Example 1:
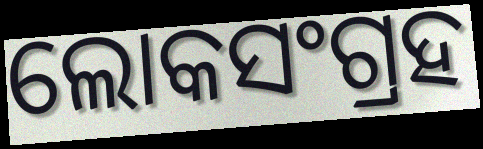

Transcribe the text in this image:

ଲୋକସଂଗ୍ରହ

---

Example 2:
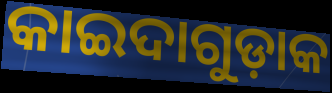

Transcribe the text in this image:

କାଇଦାଗୁଡ଼ାକ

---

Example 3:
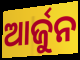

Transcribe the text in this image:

ଆର୍ଜୁନ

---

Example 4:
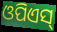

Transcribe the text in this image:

ଓପିଏସ୍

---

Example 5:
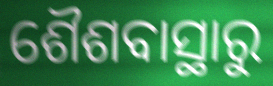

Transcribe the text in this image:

ଶୈଶବାସ୍ଥାରୁ